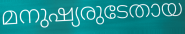
മനുഷ്യരുടേതായ